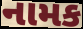
નામક